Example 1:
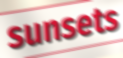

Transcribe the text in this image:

sunsets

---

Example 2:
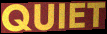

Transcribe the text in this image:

QUIET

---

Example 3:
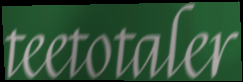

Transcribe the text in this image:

teetotaler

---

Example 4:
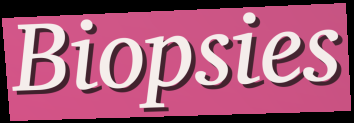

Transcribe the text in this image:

Biopsies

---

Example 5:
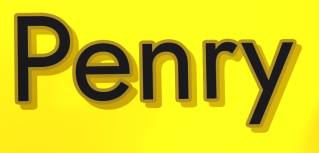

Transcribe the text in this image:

Penry